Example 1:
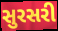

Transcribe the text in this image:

સુરસરી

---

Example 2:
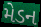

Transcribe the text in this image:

મેડન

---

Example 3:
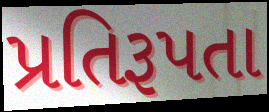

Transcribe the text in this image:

પ્રતિરૂપતા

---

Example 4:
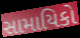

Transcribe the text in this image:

સામાયિકો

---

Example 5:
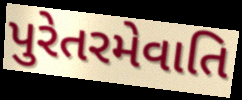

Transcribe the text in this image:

પુરેતરમેવાતિ